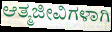
ಆತ್ಮಜೀವಿಗಳಾಗಿ